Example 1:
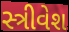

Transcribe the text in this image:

સ્ત્રીવેશ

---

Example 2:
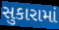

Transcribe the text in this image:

સુકારામાં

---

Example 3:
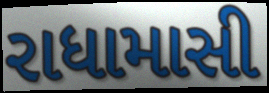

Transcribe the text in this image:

રાધામાસી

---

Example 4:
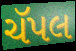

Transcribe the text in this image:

ચૅપલ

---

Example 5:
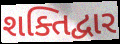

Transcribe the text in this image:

શક્તિદ્વાર